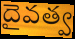
దైవత్వ